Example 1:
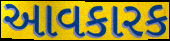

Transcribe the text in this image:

આવકારક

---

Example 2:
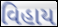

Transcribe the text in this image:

વિહાય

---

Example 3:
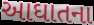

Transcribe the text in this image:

આઘાતના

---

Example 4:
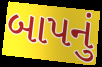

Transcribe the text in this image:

બાપનું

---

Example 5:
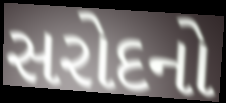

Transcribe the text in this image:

સરોદનો